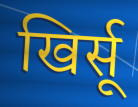
खिर्सू